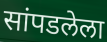
सांपडलेला